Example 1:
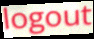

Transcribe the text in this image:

logout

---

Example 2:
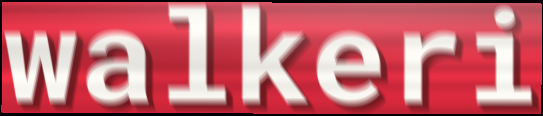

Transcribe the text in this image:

walkeri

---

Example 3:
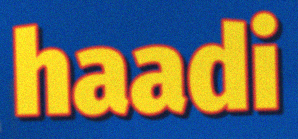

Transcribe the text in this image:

haadi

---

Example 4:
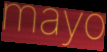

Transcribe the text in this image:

mayo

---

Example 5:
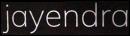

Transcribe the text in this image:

jayendra